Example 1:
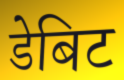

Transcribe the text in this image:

डेबिट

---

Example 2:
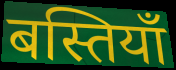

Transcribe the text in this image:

बस्तियाँ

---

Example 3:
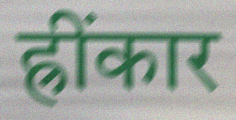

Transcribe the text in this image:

ह्रींकार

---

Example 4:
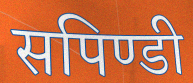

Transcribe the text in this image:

सपिण्डी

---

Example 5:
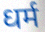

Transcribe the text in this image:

धर्म